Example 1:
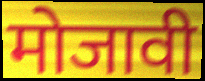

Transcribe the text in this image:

मोजावी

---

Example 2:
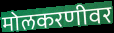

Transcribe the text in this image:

मोलकरणीवर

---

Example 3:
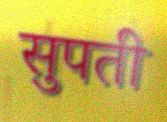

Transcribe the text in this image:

सुपती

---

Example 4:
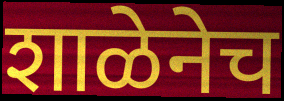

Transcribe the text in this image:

शाळेनेच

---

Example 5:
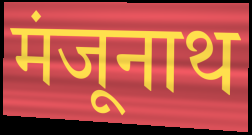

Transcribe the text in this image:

मंजूनाथ